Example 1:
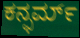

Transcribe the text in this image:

ಕನ್ಫರ್ಮ್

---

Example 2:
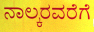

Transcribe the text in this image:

ನಾಲ್ಕರವರೆಗೆ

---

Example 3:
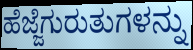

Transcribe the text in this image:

ಹೆಜ್ಜೆಗುರುತುಗಳನ್ನು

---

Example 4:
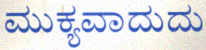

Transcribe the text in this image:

ಮುಕ್ಯವಾದುದು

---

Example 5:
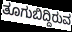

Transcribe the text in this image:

ತೂಗುಬಿದ್ದಿರುವ